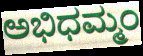
ಅಭಿಧಮ್ಮಂ